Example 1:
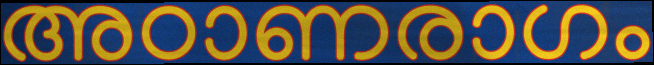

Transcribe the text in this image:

അഠാണരാഗം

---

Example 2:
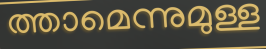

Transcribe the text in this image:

ത്താമെന്നുമുള്ള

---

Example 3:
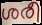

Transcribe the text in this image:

ശരീ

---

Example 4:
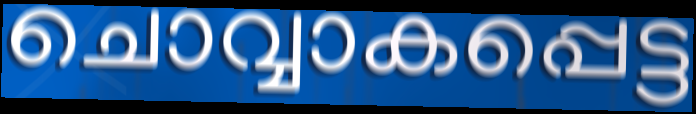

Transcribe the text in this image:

ചൊവ്വാകപ്പെട്ട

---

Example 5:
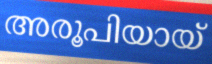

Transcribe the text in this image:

അരൂപിയായ്